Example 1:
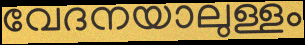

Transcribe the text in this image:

വേദനയാലുള്ളം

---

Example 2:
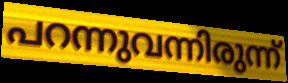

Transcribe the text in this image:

പറന്നുവന്നിരുന്ന്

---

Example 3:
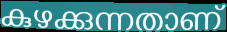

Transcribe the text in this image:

കുഴക്കുന്നതാണ്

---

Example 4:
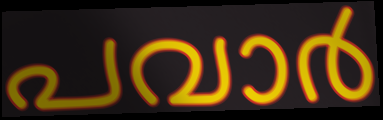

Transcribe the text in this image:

പവാർ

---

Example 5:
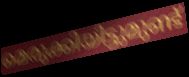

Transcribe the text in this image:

മെരുക്കിയിട്ടുമുണ്ട്